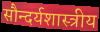
सौन्दर्यशास्त्रीय